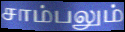
சாம்பலும்